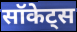
सॉकेट्स